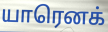
யாரெனக்